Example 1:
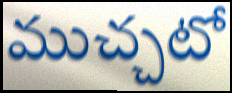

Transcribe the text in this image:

ముచ్చటో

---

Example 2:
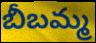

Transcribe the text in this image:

బీబమ్మ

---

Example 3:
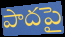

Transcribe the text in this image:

పాదపై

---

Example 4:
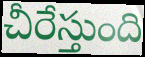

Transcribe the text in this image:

చీరేస్తుంది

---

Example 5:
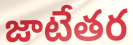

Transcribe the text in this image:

జాటేతర